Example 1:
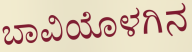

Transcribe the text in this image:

ಬಾವಿಯೊಳಗಿನ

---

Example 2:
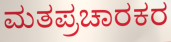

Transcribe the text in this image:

ಮತಪ್ರಚಾರಕರ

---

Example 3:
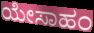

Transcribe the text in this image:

ಯೇಸಾಹಂ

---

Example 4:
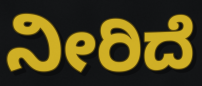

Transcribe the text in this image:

ನೀರಿದೆ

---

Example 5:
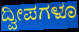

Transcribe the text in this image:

ದ್ವೀಪಗಳೂ